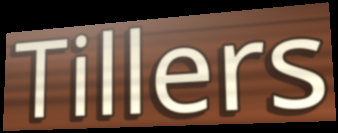
Tillers